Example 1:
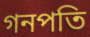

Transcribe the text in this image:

গনপতি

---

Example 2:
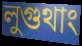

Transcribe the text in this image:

লুগুথাং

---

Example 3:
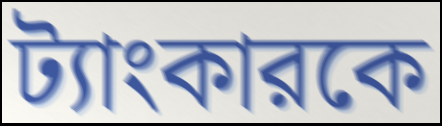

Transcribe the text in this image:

ট্যাংকারকে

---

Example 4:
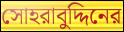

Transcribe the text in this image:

সোহরাবুদ্দিনের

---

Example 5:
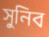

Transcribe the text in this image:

সুনিব